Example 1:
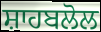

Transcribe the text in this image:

ਸ਼ਾਹਬਲੋਲ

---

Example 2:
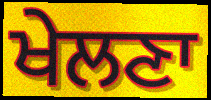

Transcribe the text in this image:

ਖੇਲਣਾ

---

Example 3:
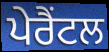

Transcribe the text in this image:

ਪੇਰੈਂਟਲ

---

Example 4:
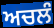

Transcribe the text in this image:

ਅਚਲੰ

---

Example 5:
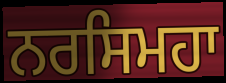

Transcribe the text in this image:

ਨਰਸਿਮਹਾ